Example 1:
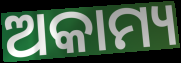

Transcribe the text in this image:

ଅକାମ୍ୟ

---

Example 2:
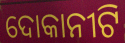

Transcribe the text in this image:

ଦୋକାନୀଟି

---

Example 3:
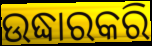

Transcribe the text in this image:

ଉଦ୍ଧାରକରି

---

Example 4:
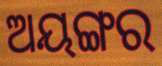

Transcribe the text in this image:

ଅୟଙ୍ଗର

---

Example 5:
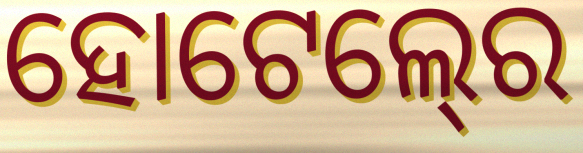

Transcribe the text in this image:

ହୋଟେଲ୍‍ରେ